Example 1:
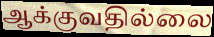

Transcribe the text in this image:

ஆக்குவதில்லை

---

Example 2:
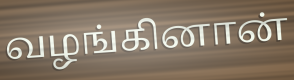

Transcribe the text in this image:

வழங்கினான்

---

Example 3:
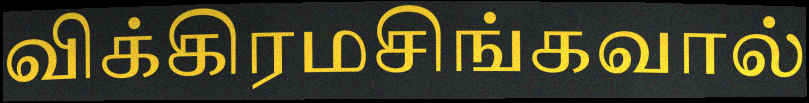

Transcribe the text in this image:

விக்கிரமசிங்கவால்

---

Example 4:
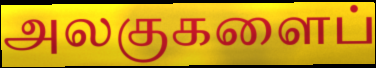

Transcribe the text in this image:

அலகுகளைப்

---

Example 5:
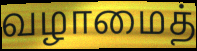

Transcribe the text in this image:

வழாமைத்